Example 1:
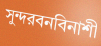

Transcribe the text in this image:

সুন্দরবনবিনাশী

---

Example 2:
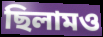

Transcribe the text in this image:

ছিলামও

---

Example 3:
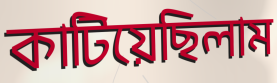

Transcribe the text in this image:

কাটিয়েছিলাম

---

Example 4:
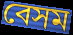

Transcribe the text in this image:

বেসম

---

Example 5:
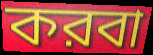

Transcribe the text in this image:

করবা